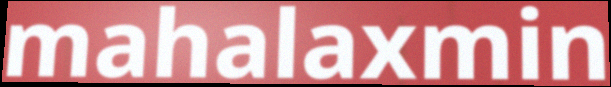
mahalaxmin